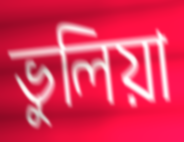
ভুলিয়া